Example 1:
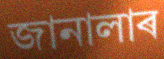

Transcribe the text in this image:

জানালাৰ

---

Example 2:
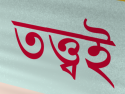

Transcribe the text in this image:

তত্ত্বই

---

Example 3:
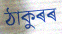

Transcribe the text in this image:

ঠাকুৰৰ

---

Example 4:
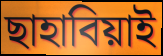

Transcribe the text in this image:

ছাহাবিয়াই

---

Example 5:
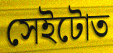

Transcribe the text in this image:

সেইটোত